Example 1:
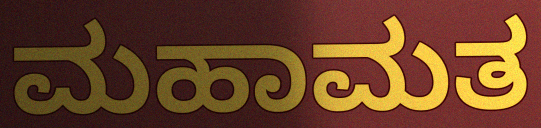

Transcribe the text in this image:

ಮಹಾಮತ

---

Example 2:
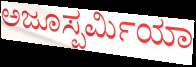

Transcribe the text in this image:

ಅಜೂಸ್ಪರ್ಮಿಯಾ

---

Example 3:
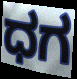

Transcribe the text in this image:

ಧಗ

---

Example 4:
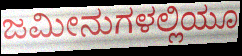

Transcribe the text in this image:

ಜಮೀನುಗಳಲ್ಲಿಯೂ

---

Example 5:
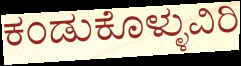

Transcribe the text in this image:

ಕಂಡುಕೊಳ್ಳುವಿರಿ